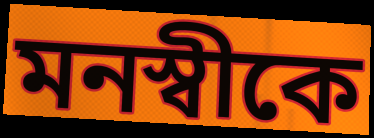
মনস্বীকে